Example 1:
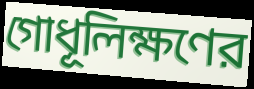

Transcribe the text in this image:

গোধূলিক্ষণের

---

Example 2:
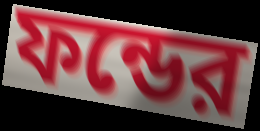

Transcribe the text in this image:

ফন্ডের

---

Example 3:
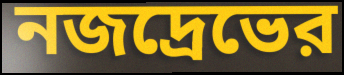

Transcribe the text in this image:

নজদ্রেভের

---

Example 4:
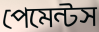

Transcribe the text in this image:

পেমেন্টস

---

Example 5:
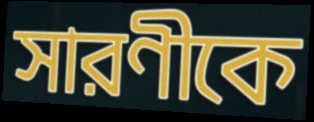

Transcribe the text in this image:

সারণীকে